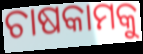
ଚାଷକାମକୁ